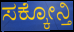
ಸಕ್ಕೋನ್ತಿ